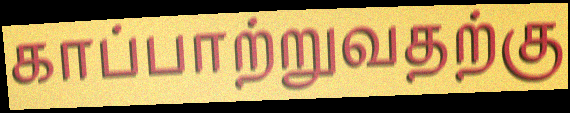
காப்பாற்றுவதற்கு